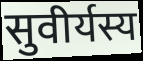
सुवीर्यस्य